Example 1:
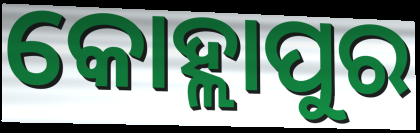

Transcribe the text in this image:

କୋହ୍ଲାପୁର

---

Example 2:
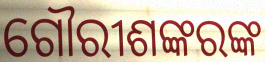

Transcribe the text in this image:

ଗୌରୀଶଙ୍କରଙ୍କ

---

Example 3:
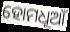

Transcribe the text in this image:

ହୋମଧୂଆଁ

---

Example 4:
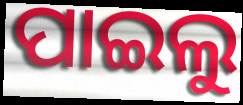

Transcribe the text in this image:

ପାଇଲୁ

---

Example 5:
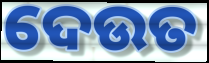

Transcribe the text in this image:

ଦେଉତ